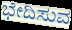
ಭೇದಿಸುವ